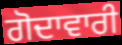
ਗੋਦਾਵਾਰੀ